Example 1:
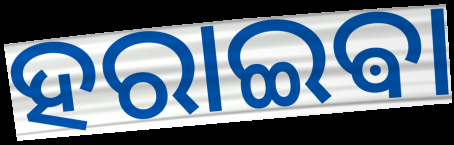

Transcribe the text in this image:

ହରାଇଵା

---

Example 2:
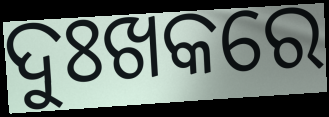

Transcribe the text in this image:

ଦୁଃଖକରେ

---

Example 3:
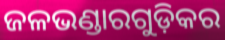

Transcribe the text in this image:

ଜଳଭଣ୍ଡାରଗୁଡ଼ିକର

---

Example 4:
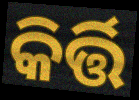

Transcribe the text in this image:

କିର୍ତ୍ତି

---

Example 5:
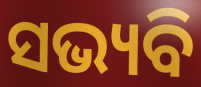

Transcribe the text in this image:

ସଭ୍ୟବି